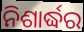
ନିଶାର୍ଦ୍ଧର